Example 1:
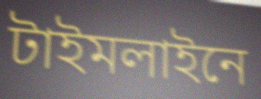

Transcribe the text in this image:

টাইমলাইনে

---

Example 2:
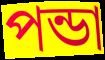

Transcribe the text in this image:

পন্ডা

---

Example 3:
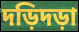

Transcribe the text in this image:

দড়িদড়া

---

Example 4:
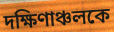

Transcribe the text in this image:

দক্ষিণাঞ্চলকে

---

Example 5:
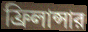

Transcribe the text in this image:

ফ্রিলান্সার